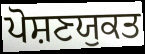
ਪੋਸ਼ਣਯੁਕਤ